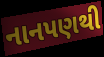
નાનપણથી